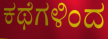
ಕಥೆಗಳಿಂದ